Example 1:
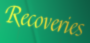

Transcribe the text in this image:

Recoveries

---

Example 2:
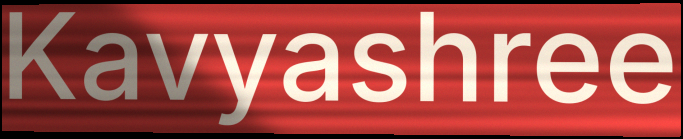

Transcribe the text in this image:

Kavyashree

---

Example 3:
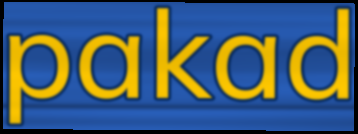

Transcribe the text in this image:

pakad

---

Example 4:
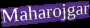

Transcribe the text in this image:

Maharojgar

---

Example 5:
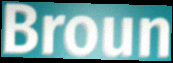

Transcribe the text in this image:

Broun